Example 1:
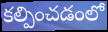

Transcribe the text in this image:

కల్పించడంలో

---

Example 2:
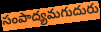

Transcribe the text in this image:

సంపాద్యమగుదురు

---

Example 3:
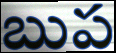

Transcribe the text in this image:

బుప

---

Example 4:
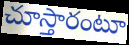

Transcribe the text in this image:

చూస్తారంటూ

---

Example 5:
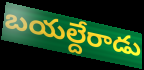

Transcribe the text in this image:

బయల్దేరాడు